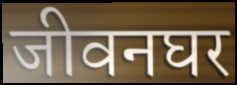
जीवनघर